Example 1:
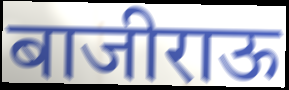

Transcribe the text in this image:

बाजीराऊ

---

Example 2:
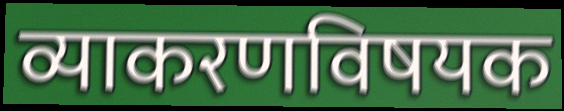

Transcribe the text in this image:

व्याकरणविषयक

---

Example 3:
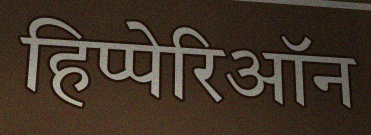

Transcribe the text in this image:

हिप्पेरिऑन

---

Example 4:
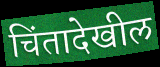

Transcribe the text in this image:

चिंतादेखील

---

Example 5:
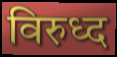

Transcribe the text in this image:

विरुध्द